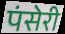
पंसेरी